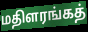
மதிளரங்கத்